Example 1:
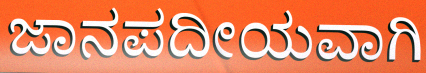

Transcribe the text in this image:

ಜಾನಪದೀಯವಾಗಿ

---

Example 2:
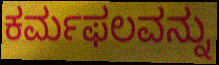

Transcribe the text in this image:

ಕರ್ಮಫಲವನ್ನು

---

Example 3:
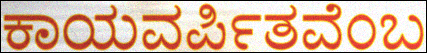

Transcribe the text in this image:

ಕಾಯವರ್ಪಿತವೆಂಬ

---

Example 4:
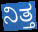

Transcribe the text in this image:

ನಿತ್ತ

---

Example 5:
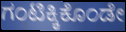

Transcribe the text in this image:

ಗಂಟಿಕ್ಕಿಕೊಂಡೇ